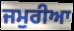
ਜਮੁਰੀਆ